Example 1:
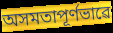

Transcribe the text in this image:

অসমতাপূৰ্ণভাৱে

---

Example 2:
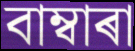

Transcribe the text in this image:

বাম্বাৰা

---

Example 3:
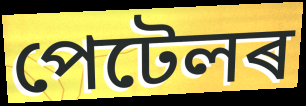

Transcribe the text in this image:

পেটেলৰ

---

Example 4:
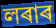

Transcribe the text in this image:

লৰাৰ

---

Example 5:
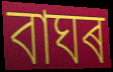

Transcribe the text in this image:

বাঘৰ